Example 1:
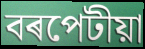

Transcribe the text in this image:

বৰপেটীয়া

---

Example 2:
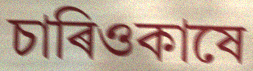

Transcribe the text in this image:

চাৰিওকাষে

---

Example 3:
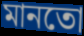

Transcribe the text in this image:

মানতো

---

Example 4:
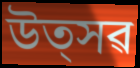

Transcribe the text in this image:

উত্সৱ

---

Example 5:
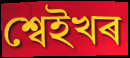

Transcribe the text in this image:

শ্বেইখৰ